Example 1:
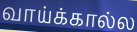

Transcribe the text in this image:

வாய்க்கால்ல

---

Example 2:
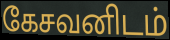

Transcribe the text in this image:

கேசவனிடம்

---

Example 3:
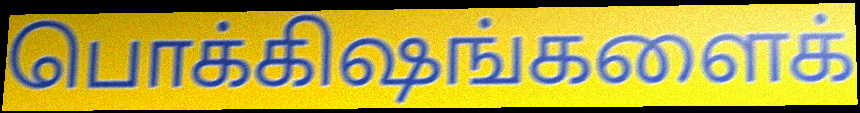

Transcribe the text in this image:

பொக்கிஷங்களைக்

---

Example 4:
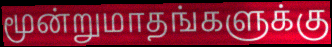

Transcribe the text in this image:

மூன்றுமாதங்களுக்கு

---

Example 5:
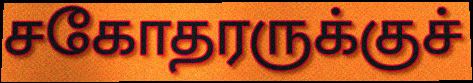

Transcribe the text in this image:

சகோதரருக்குச்